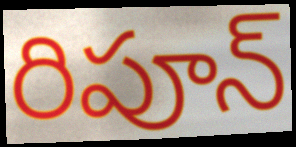
రిపూన్